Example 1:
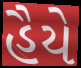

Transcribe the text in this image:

હૈયે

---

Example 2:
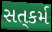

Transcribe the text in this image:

સત્‌કર્મ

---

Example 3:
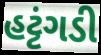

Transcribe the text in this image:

હટ્ટંગડી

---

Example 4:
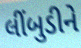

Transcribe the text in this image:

લીંબુડીને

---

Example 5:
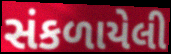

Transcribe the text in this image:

સંકળાયેલી